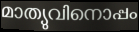
മാത്യുവിനൊപ്പം